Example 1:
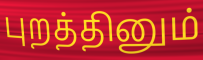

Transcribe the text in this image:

புறத்தினும்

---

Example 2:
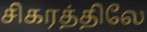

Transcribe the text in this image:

சிகரத்திலே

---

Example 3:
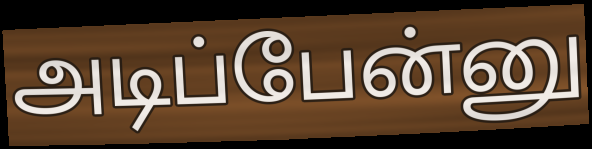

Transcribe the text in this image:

அடிப்பேன்னு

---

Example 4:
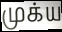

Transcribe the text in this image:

முக்ய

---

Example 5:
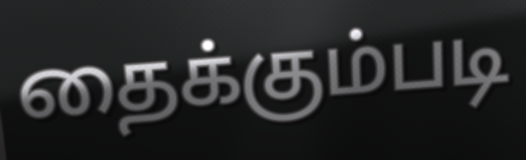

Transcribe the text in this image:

தைக்கும்படி